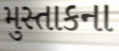
મુસ્તાકના